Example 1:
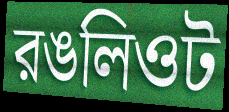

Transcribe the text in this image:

রঙলিওট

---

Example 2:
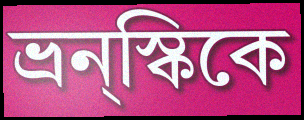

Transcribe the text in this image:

ভ্রন্‌স্কিকে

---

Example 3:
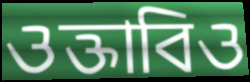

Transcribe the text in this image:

ওক্তাবিও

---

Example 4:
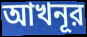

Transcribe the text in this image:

আখনূর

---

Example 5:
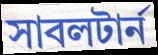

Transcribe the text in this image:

সাবলটার্ন